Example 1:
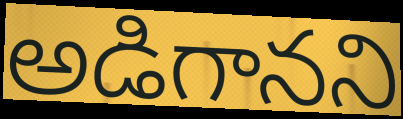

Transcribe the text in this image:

అడిగానని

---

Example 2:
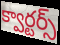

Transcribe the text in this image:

క్వార్టర్స్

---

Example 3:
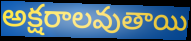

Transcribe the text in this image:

అక్షరాలవుతాయి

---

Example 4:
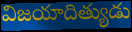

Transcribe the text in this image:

విజయాదిత్యుడు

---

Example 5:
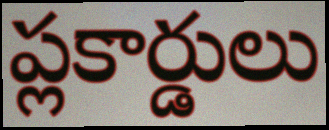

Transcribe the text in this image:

ప్లకార్డులు